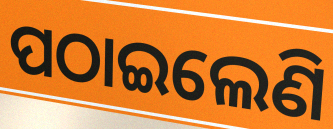
ପଠାଇଲେଣି